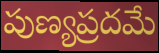
పుణ్యప్రదమే